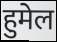
हुमेल